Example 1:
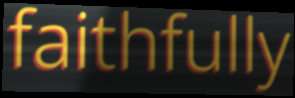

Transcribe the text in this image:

faithfully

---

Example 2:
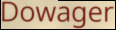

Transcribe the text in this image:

Dowager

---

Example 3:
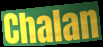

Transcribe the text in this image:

Chalan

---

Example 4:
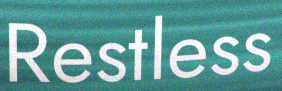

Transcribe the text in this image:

Restless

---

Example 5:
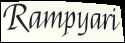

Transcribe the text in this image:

Rampyari